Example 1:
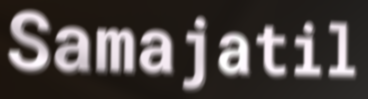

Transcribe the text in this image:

Samajatil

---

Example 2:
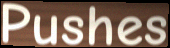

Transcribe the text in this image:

Pushes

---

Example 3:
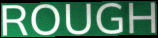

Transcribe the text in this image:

ROUGH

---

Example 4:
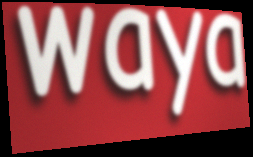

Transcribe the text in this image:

waya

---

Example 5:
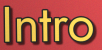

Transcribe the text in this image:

Intro